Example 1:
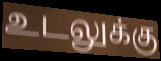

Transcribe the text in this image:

உடலுக்கு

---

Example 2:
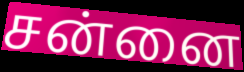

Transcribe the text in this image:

சன்னை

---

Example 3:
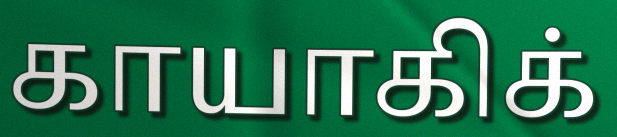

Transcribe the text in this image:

காயாகிக்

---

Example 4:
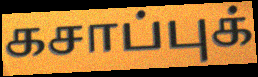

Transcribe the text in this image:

கசாப்புக்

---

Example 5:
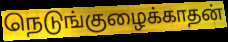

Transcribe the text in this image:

நெடுங்குழைக்காதன்